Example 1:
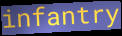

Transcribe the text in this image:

infantry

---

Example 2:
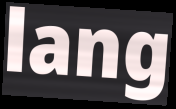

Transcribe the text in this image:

lang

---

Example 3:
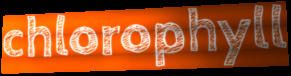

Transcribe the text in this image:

chlorophyll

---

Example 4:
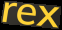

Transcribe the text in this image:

rex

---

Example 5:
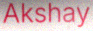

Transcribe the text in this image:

Akshay